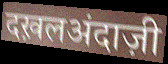
दख़लअंदाज़ी